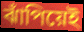
ঝাঁপিয়েই